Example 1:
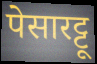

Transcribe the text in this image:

पेसारट्टू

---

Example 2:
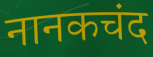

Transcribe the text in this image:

नानकचंद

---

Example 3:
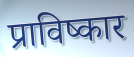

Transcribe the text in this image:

प्राविष्कार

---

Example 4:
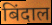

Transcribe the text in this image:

बिंदाल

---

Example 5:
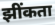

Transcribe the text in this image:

झींकता